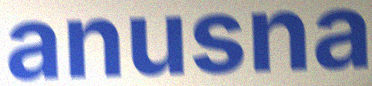
anusna